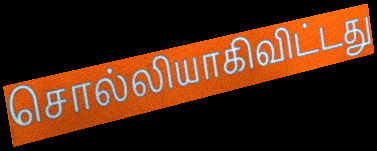
சொல்லியாகிவிட்டது